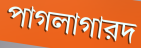
পাগলাগারদ